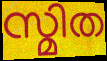
സ്മിത